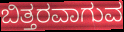
ಬಿತ್ತರವಾಗುವ